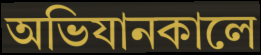
অভিযানকালে